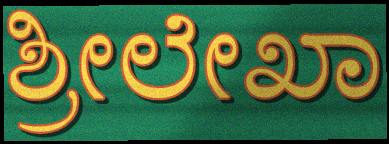
ಶ್ರೀಲೇಖಾ